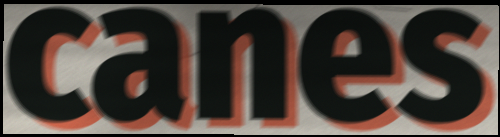
canes